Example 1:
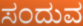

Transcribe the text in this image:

ಸಂದುವ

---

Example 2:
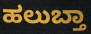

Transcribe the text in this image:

ಹಲುಬ್ತಾ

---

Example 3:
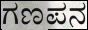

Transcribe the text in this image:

ಗಣಪನ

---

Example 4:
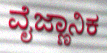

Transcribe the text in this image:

ವೈಜ್ಣಾನಿಕ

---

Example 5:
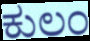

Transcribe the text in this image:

ಕುಲಂ